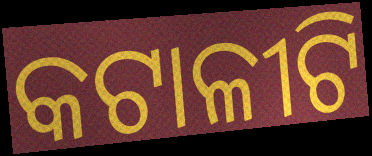
କଟାଳୀଟି